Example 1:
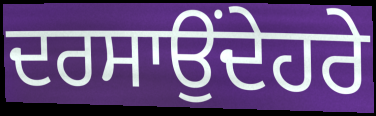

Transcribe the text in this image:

ਦਰਸਾਉਂਦੇਹਰੇ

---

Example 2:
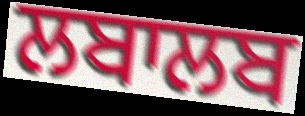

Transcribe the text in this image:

ਲਬਾਲਬ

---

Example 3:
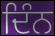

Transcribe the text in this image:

ਦਿੰਨ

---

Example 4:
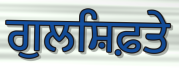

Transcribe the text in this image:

ਗੁਲਸ਼ਿਫ਼ਤੇ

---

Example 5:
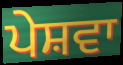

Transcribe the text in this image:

ਪੇਸ਼ਵਾ